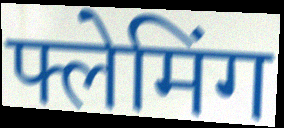
फ्लेमिंग